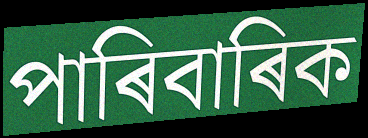
পাৰিবাৰিক